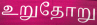
உறுதோறு